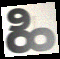
ಹಿ